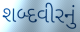
શબ્દવીરનું